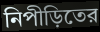
নিপীড়িতের